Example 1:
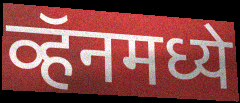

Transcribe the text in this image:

व्हॅनमध्ये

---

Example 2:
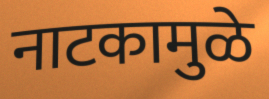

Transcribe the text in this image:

नाटकामुळे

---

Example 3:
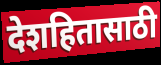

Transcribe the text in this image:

देशहितासाठी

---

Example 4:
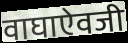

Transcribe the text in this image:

वाघाऐवजी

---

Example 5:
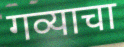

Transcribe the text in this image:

गव्याचा